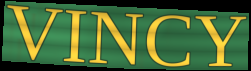
VINCY